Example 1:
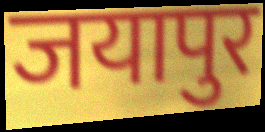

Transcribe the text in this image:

जयापुर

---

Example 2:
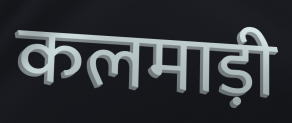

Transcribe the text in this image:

कलमाड़ी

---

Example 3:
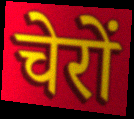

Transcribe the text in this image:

चेरों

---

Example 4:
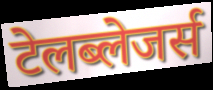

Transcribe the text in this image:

टेलब्लेजर्स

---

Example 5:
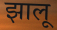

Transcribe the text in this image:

झालू